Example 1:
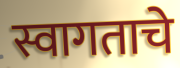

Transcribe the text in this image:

स्वागताचे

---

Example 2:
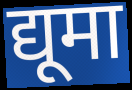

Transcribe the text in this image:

द्यूमा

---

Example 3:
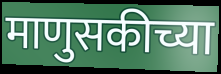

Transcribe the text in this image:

माणुसकीच्या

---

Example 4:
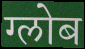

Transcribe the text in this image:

ग्लोब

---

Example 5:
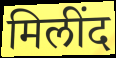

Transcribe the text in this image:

मिलींद